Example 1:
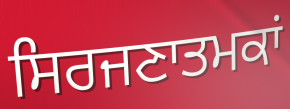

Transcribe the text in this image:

ਸਿਰਜਣਾਤਮਕਾਂ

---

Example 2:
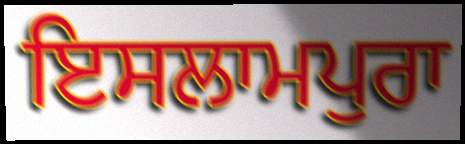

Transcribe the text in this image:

ਇਸਲਾਮਪੁਰਾ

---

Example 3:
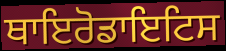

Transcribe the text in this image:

ਥਾਇਰੋਡਾਇਟਿਸ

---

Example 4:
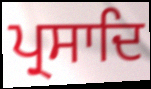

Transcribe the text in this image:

ਪ੍ਰਸਾਦਿ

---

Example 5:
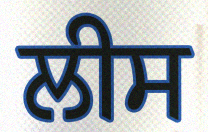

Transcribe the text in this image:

ਲੀਸ